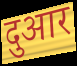
दुआर